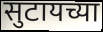
सुटायच्या